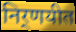
निर्णयीत